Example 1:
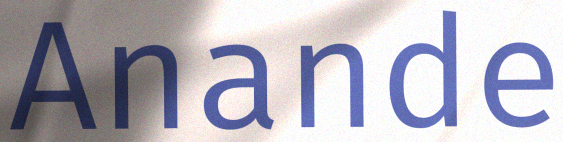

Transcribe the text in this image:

Anande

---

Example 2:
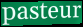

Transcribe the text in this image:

pasteur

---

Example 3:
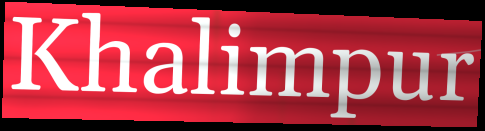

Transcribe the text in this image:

Khalimpur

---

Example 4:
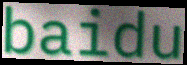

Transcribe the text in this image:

baidu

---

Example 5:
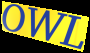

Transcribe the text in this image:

OWL